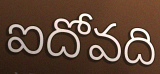
ఐదోవది